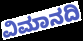
ವಿಮಾನದಿ